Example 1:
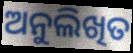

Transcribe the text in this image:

ଅନୁଲିଖିତ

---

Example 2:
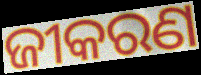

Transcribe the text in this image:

ଜୀକରଣ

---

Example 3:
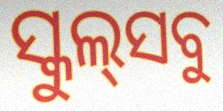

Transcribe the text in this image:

ସ୍କୁଲ୍‍ସବୁ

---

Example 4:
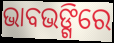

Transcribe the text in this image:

ଭାବଭଙ୍ଗିରେ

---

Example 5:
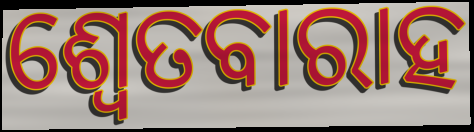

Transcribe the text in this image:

ଶ୍ଵେତବାରାହ